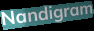
Nandigram